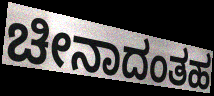
ಚೀನಾದಂತಹ